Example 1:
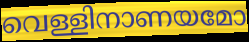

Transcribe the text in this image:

വെള്ളിനാണയമോ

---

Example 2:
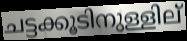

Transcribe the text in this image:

ചട്ടക്കൂടിനുള്ളില്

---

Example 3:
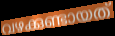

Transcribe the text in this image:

വഴക്കുണ്ടായത്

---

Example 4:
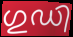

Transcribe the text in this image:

ഗുഡി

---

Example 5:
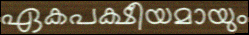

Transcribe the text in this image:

ഏകപക്ഷീയമായും